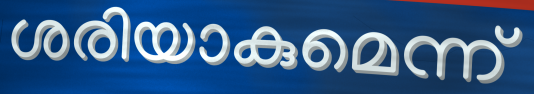
ശരിയാകുമെന്ന്